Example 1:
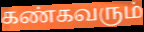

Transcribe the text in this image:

கண்கவரும்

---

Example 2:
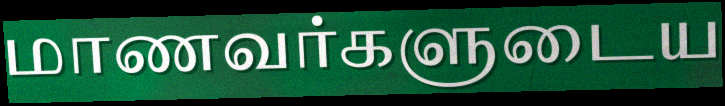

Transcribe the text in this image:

மாணவர்களுடைய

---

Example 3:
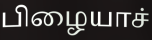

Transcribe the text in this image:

பிழையாச்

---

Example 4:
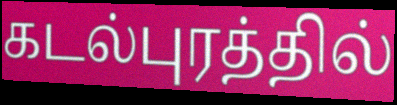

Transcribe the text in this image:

கடல்புரத்தில்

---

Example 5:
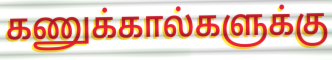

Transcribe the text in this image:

கணுக்கால்களுக்கு